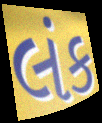
લંક